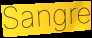
Sangre